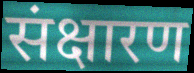
संक्षारण